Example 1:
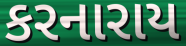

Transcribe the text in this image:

કરનારાય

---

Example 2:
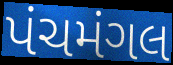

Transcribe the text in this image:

પંચમંગલ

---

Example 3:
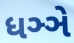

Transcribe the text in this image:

ધઞ્ઞે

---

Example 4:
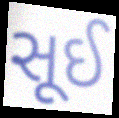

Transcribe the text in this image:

સૂઈ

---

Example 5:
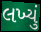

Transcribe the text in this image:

લખ્યું